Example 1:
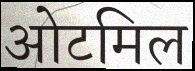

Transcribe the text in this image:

ओटमिल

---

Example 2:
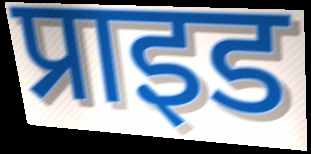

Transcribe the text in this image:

प्राइड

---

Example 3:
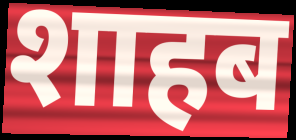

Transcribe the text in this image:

शाहब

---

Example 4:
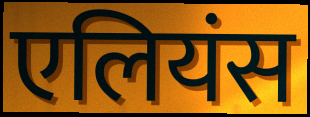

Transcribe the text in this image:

एलियंस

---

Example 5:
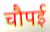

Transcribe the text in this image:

चौपई